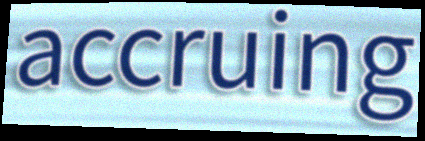
accruing